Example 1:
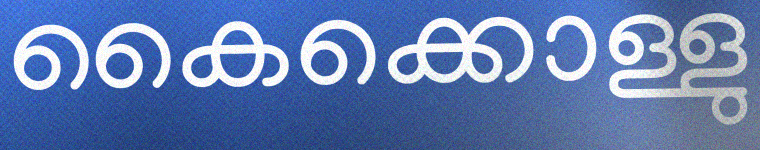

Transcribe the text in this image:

കൈക്കൊള്ളു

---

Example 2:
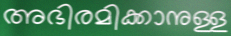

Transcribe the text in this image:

അഭിരമിക്കാനുള്ള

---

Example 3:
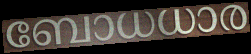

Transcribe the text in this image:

ബോധധാര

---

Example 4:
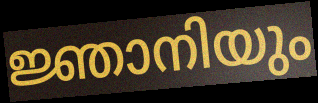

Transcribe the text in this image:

ജ്ഞാനിയും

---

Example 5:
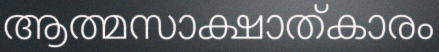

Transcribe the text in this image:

ആത്മസാക്ഷാത്കാരം